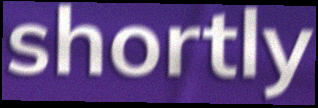
shortly